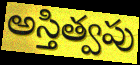
అస్తిత్వపు